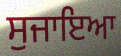
ਸੁਜਾਇਆ